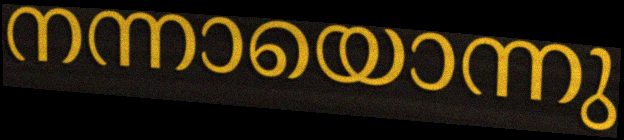
നന്നായൊന്നു